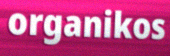
organikos